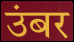
उंबर